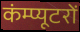
कंम्प्यूटरों